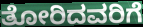
ತೋರಿದವರಿಗೆ